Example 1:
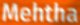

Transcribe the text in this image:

Mehtha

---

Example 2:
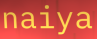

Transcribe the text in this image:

naiya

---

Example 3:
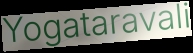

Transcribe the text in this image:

Yogataravali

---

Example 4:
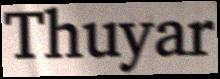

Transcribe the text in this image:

Thuyar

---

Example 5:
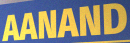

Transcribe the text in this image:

AANAND